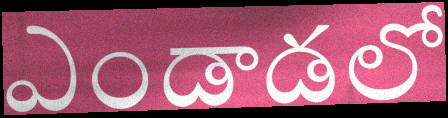
ఎండాడలో